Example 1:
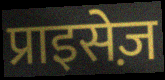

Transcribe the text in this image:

प्राइसेज़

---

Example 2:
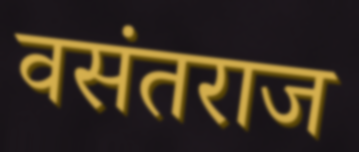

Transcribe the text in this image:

वसंतराज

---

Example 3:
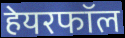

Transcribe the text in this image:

हेयरफॉल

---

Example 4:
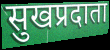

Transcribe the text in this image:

सुखप्रदाता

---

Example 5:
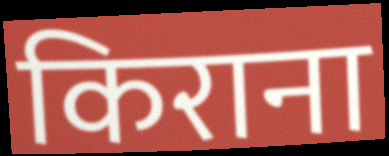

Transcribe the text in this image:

किराना